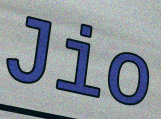
Jio